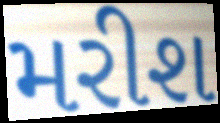
મરીશ